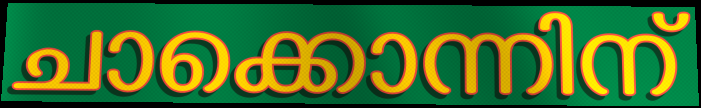
ചാക്കൊന്നിന്